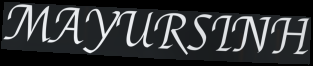
MAYURSINH